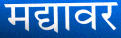
मद्यावर